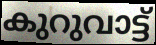
കുറുവാട്ട്